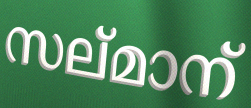
സല്മാന്